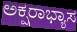
ಅಕ್ಷರಾಭ್ಯಾಸ